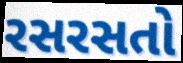
રસરસતો